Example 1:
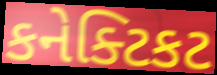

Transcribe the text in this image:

કનેક્ટિકટ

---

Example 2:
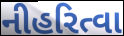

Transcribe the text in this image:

નીહરિત્વા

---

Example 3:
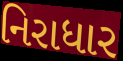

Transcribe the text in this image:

નિરાધાર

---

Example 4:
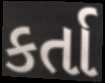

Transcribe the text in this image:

કર્તા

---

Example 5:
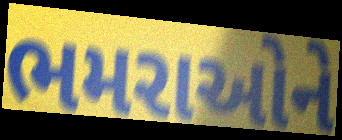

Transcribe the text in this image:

ભમરાઓને